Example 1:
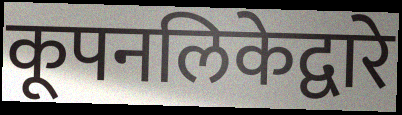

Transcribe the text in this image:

कूपनलिकेद्वारे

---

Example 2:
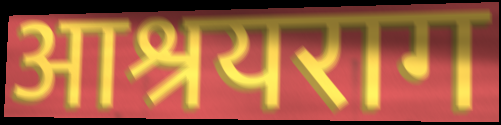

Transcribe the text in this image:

आश्रयराग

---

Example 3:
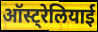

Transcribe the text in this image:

ऑस्ट्रेलियाई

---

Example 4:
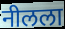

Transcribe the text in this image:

नीलला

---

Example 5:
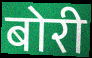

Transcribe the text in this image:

बोरी